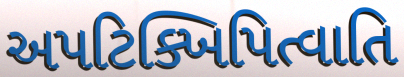
અપટિક્ખિપિત્વાતિ